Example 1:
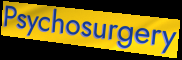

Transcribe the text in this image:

Psychosurgery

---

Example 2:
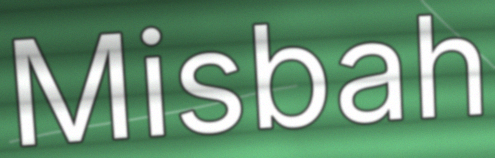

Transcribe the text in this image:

Misbah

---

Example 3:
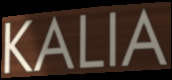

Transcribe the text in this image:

KALIA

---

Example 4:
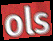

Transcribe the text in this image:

ols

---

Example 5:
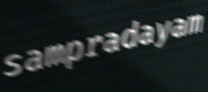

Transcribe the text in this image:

sampradayam